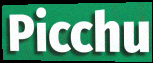
Picchu